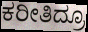
ಕರೀತಿದ್ರೂ